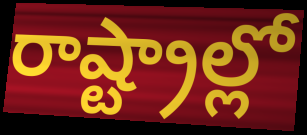
రాష్ట్రాల్లో